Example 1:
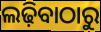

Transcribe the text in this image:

ଲଢ଼ିବାଠାରୁ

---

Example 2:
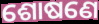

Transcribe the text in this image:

ଶୋଷଣେ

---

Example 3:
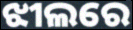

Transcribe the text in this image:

ଝୀଲରେ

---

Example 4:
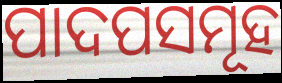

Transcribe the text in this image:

ପାଦପସମୂହ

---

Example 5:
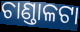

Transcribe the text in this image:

ଚାଣ୍ଡାଳଟା